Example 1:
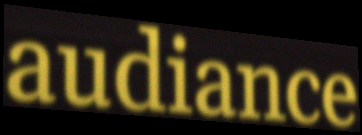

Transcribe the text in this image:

audiance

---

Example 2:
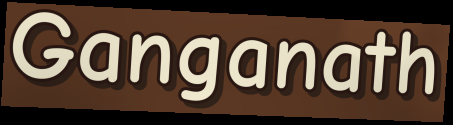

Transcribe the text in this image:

Ganganath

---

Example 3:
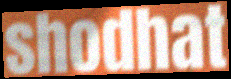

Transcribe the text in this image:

shodhat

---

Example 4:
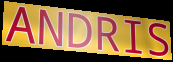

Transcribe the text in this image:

ANDRIS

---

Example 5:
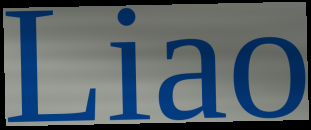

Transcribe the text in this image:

Liao